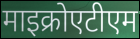
माइक्रोएटीएम